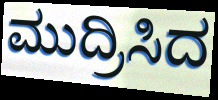
ಮುದ್ರಿಸಿದ